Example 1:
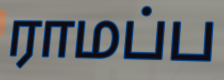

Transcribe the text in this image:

ராமப்ப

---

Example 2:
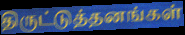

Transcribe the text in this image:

திருட்டுத்தனங்கள்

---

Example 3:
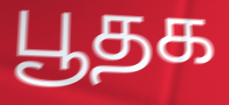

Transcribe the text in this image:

பூதக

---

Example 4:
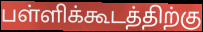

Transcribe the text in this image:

பள்ளிக்கூடத்திற்கு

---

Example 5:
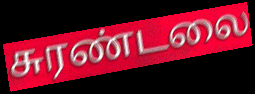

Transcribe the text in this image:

சுரண்டலை